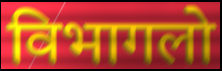
विभागलो